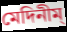
মেদিনীম্